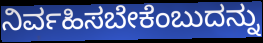
ನಿರ್ವಹಿಸಬೇಕೆಂಬುದನ್ನು